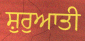
ਸ਼ੁਰੁਆਤੀ